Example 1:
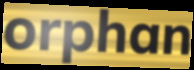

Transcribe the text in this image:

orphan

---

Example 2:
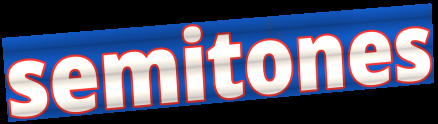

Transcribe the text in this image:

semitones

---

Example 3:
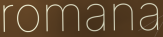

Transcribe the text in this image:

romana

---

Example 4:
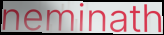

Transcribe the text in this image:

neminath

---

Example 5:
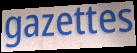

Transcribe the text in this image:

gazettes